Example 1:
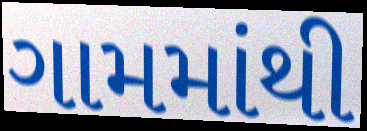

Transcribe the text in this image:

ગામમાંથી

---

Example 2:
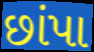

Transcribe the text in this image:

છાંપા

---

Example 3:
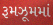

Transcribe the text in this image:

રૂમઝૂમમાં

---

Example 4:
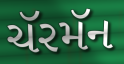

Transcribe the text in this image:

ચૅરમૅન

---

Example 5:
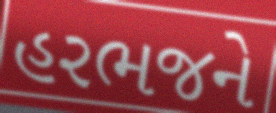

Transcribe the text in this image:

હરભજને